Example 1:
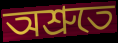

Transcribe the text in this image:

অশ্রুতে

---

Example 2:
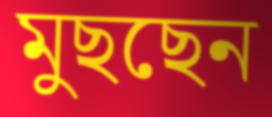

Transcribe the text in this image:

মুছছেন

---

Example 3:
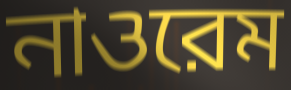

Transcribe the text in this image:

নাওরেম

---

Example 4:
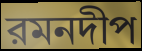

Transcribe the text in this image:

রমনদীপ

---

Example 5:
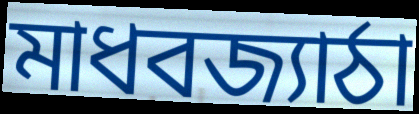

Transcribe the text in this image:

মাধবজ্যাঠা